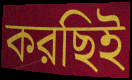
করছিই